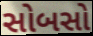
સોબસો